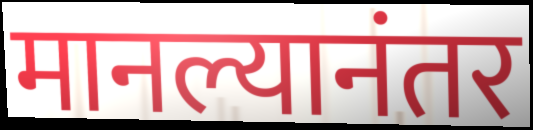
मानल्यानंतर